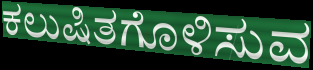
ಕಲುಷಿತಗೊಳಿಸುವ